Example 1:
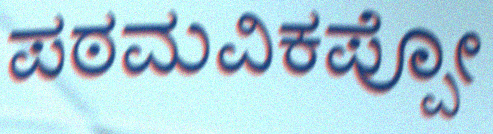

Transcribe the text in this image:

ಪಠಮವಿಕಪ್ಪೋ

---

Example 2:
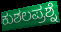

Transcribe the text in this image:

ಕುಶಲಪ್ರಶ್ನೆ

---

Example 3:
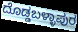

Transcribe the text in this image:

ದೊಡ್ಡಬಳ್ಳಾಪುರ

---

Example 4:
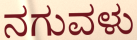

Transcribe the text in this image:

ನಗುವಳು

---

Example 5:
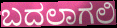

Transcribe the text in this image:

ಬದಲಾಗಲಿ